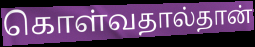
கொள்வதால்தான்